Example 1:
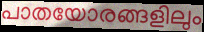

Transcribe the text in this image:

പാതയോരങ്ങളിലും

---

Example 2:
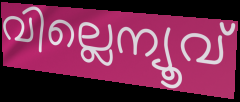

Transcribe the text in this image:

വില്ലെന്യൂവ്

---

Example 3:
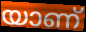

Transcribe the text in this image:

യാണ്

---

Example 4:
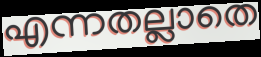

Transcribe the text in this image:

എന്നതല്ലാതെ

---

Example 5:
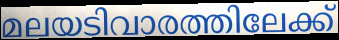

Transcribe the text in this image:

മലയടിവാരത്തിലേക്ക്